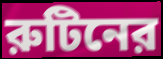
রুটিনের